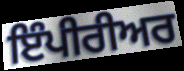
ਇੰਪੀਰੀਅਰ